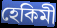
হেকিমী